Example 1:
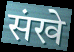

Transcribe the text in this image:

संखे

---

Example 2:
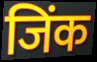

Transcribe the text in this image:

जिंक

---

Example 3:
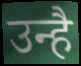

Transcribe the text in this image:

उन्है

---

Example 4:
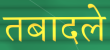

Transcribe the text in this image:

तबादले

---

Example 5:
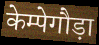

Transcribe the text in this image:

केम्पेगौड़ा